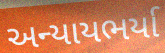
અન્યાયભર્યા